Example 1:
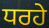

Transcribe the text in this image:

ਧਰਹੇ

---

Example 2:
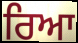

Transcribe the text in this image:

ਰਿਆ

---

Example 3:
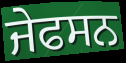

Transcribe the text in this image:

ਜੇਫਸਨ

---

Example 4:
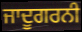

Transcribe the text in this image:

ਜਾਦੂਗਰਨੀ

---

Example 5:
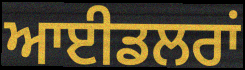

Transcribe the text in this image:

ਆਈਡਲਰਾਂ